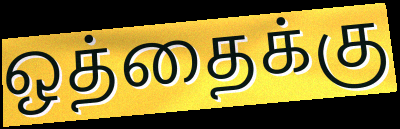
ஒத்தைக்கு